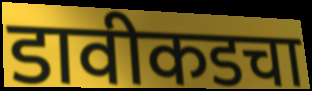
डावीकडचा